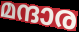
മന്ദാര